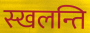
स्खलन्ति